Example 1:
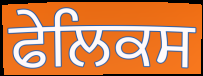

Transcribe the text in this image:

ਫੇਲਿਕਸ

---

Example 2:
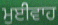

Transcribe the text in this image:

ਮੁਈਵਾਹ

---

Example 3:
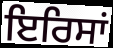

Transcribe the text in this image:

ਇਰਿਸਾਂ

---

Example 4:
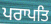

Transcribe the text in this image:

ਪਰਾਪਤਿ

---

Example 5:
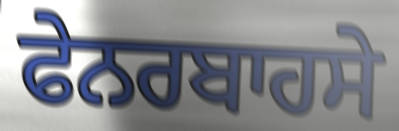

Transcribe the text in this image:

ਫੇਨਰਬਾਹਸੇ